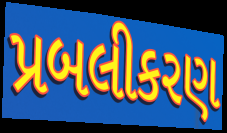
પ્રબલીકરણ